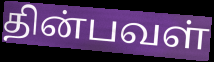
தின்பவள்